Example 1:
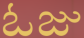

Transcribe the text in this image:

ఓజు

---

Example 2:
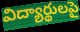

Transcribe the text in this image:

విద్యార్థులపై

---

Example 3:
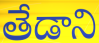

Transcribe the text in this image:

తేడాని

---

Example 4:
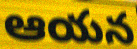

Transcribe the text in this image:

ఆయన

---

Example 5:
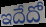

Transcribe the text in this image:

ఇదేదో